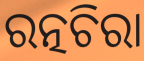
ରତ୍ନଚିରା